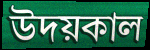
উদয়কাল